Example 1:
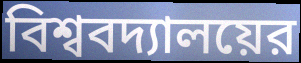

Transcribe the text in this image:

বিশ্ববদ্যালয়ের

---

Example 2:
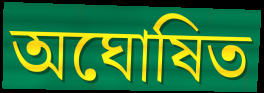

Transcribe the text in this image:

অঘোষিত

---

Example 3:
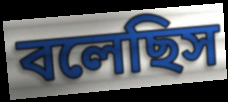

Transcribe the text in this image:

বলেছিস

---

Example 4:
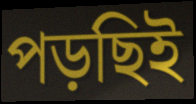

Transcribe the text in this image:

পড়ছিই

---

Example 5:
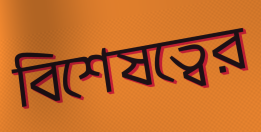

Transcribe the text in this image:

বিশেষত্বের